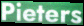
Pieters